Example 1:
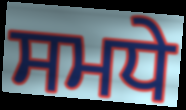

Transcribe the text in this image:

ਸਮਧੇ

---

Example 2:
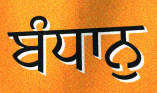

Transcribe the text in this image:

ਬੰਧਾਨੁ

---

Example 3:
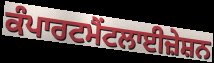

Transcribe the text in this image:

ਕੰਪਾਰਟਮੈਂਟਲਾਈਜ਼ੇਸ਼ਨ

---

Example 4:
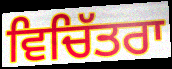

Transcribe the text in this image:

ਵਿਚਿੱਤਰਾ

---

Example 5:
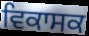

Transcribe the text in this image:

ਵਿਕਾਸਕ